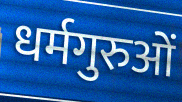
धर्मगुरुओं